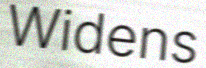
Widens